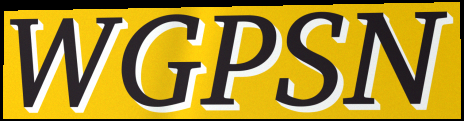
WGPSN